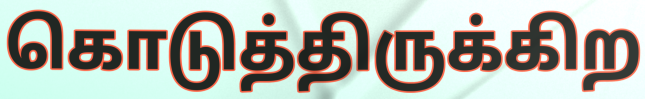
கொடுத்திருக்கிற